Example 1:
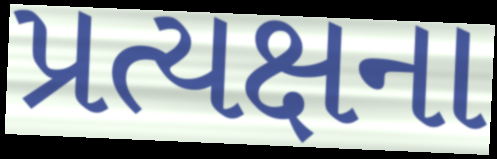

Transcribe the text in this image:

પ્રત્યક્ષના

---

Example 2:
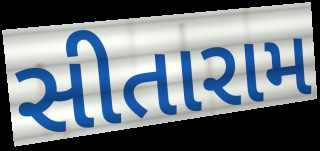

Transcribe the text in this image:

સીતારામ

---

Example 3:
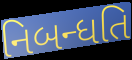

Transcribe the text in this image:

નિબન્ધતિ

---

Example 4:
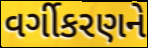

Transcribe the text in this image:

વર્ગીકરણને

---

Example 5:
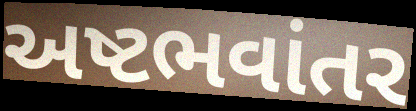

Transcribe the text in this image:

અષ્ટભવાંતર